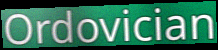
Ordovician